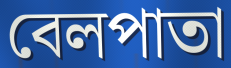
বেলপাতা